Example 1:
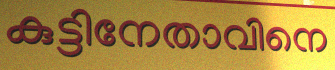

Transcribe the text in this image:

കുട്ടിനേതാവിനെ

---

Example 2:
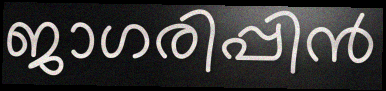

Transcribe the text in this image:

ജാഗരിപ്പിൻ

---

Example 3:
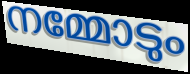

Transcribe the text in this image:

നമ്മോടും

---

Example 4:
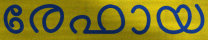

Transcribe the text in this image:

രേഫായ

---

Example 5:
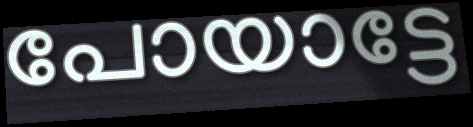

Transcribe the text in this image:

പോയാട്ടേ